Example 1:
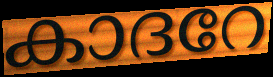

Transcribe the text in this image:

കാദറേ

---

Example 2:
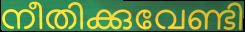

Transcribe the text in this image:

നീതിക്കുവേണ്ടി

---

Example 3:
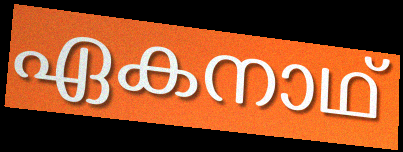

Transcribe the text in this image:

ഏകനാഥ്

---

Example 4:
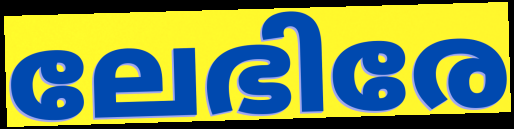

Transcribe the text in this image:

ലേഭിരേ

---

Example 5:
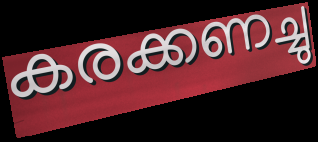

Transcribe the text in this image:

കരക്കണച്ചു